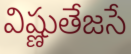
విష్ణుతేజసే